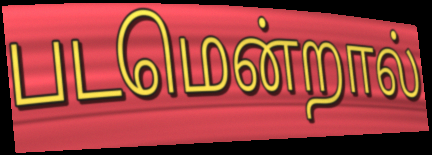
படமென்றால்